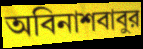
অবিনাশবাবুর